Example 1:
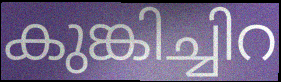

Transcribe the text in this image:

കുങ്കിച്ചിറ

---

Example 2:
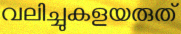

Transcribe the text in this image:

വലിച്ചുകളയരുത്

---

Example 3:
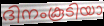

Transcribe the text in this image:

ദിനംകൂടിയാ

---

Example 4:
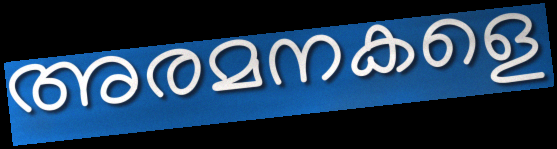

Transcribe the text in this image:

അരമനകളെ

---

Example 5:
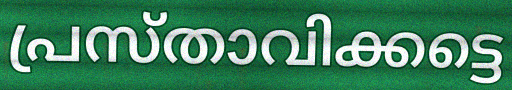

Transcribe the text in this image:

പ്രസ്താവിക്കട്ടെ